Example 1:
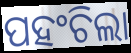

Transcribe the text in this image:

ପହଂଚିଲା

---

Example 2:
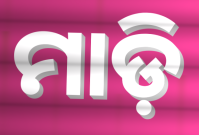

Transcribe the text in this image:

ମାଡ଼ି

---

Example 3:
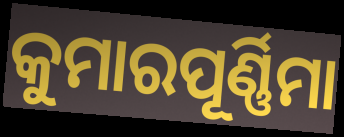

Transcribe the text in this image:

କୁମାରପୂର୍ଣ୍ଣିମା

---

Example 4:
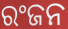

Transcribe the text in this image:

ରଂଜନ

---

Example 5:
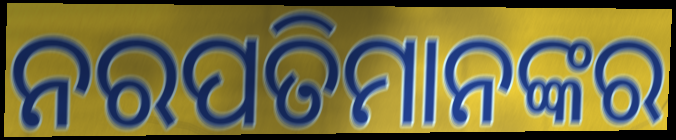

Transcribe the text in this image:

ନରପତିମାନଙ୍କର